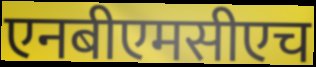
एनबीएमसीएच